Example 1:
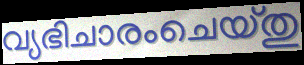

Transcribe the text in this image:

വ്യഭിചാരംചെയ്തു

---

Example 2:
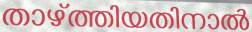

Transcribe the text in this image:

താഴ്ത്തിയതിനാൽ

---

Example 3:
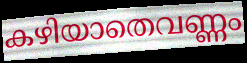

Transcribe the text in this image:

കഴിയാതെവണ്ണം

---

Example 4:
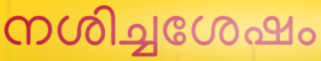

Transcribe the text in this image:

നശിച്ചശേഷം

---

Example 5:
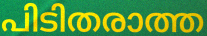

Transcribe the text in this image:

പിടിതരാത്ത